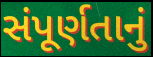
સંપૂર્ણતાનું